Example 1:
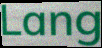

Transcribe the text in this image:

Lang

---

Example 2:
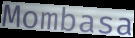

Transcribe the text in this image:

Mombasa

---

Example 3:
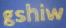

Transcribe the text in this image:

gshiw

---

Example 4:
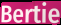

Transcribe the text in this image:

Bertie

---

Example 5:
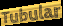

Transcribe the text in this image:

Tubular